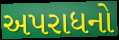
અપરાધનો